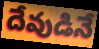
దేవుడినే